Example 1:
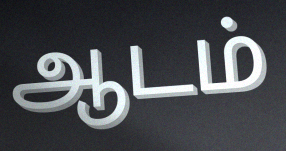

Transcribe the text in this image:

ஆடம்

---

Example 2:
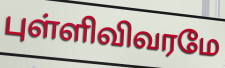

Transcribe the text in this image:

புள்ளிவிவரமே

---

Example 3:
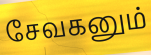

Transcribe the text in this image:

சேவகனும்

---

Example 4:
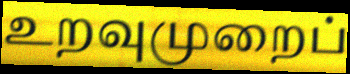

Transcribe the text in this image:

உறவுமுறைப்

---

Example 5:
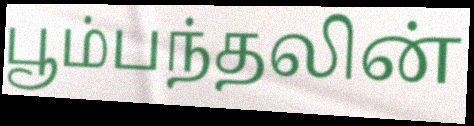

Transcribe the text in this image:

பூம்பந்தலின்